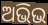
ଅଭିଭ